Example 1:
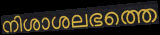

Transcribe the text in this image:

നിശാശലഭത്തെ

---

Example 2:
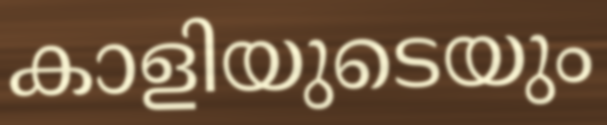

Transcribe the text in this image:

കാളിയുടെയും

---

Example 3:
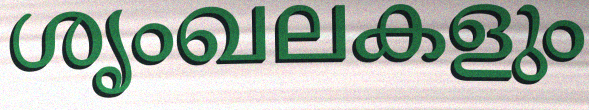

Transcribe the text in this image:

ശൃംഖലകളും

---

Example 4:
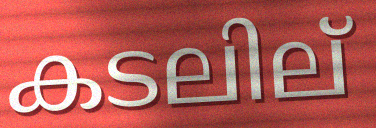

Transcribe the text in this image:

കടലില്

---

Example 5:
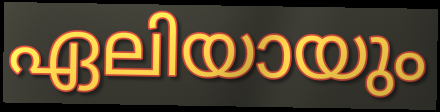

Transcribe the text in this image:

ഏലിയായും